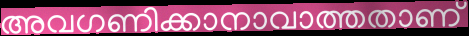
അവഗണിക്കാനാവാത്തതാണ്